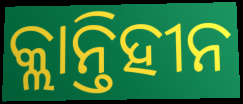
କ୍ଲାନ୍ତିହୀନ